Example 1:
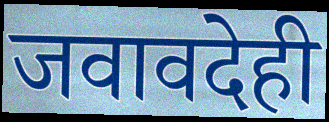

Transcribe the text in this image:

जवावदेही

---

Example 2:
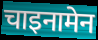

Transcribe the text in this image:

चाइनामेन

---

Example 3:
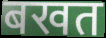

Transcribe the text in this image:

बखत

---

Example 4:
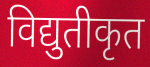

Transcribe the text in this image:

विद्युतीकृत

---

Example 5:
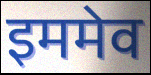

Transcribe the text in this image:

इममेव